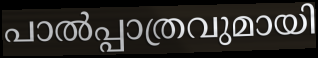
പാൽപ്പാത്രവുമായി